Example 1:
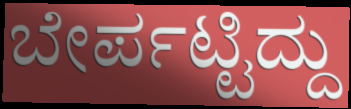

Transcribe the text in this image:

ಬೇರ್ಪಟ್ಟಿದ್ದು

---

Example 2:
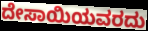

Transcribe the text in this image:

ದೇಸಾಯಿಯವರದು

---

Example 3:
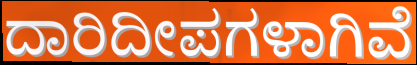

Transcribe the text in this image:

ದಾರಿದೀಪಗಳಾಗಿವೆ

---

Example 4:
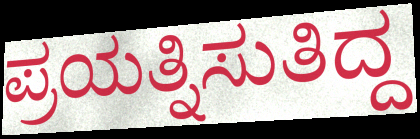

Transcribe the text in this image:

ಪ್ರಯತ್ನಿಸುತಿದ್ದ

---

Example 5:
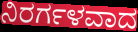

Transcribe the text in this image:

ನಿರರ್ಗಳವಾದ